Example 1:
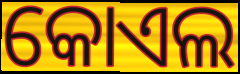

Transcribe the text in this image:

କୋଏଲ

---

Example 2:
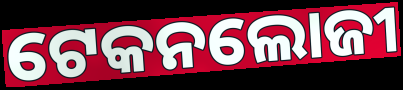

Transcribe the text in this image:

ଟେକନଲୋଜୀ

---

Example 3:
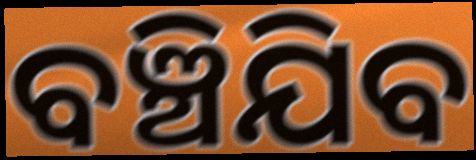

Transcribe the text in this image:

ବଞ୍ଚିଯିବ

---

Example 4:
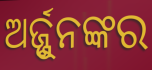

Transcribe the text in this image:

ଅର୍ଜ୍ଜୁନଙ୍କର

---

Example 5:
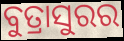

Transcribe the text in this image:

ବୁତ୍ରାସୁରର